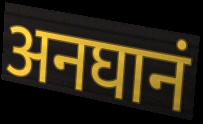
अनघानं